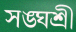
সঙ্ঘশ্রী